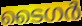
ടൈഗർ